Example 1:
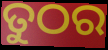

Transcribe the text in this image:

ତୁଠର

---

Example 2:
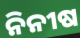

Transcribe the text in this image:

ନିନୀଷ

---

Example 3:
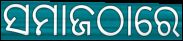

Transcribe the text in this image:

ସମାଜଠାରେ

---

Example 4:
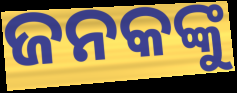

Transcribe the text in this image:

ଜନକଙ୍କୁ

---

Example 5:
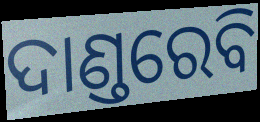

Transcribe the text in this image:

ଦାଣ୍ଡରେବି